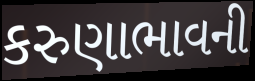
કરુણાભાવની